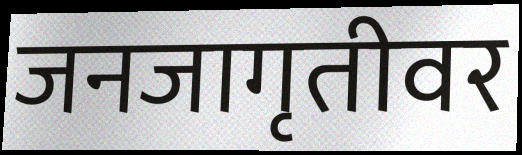
जनजागृतीवर